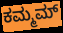
ಕಮ್ಮಮ್